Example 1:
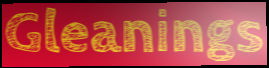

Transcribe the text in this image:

Gleanings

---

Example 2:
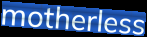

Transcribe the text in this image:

motherless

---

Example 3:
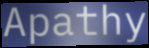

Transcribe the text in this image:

Apathy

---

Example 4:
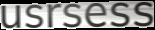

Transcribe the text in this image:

usrsess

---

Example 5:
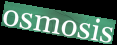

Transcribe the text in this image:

osmosis